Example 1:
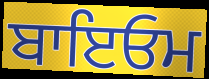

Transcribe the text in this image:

ਬਾਇਓਮ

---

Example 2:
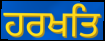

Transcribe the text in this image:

ਹਰਖਤਿ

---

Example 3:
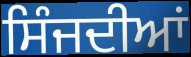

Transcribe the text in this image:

ਸਿੰਜਦੀਆਂ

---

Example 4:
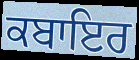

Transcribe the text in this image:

ਕਬਾਇਰ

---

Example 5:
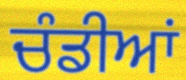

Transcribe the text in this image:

ਚੰਡੀਆਂ